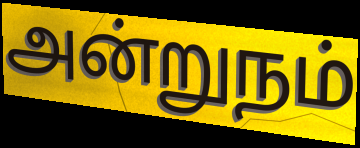
அன்றுநம்